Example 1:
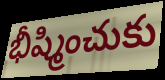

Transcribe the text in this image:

భీష్మించుకు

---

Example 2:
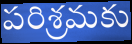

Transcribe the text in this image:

పరిశ్రమకు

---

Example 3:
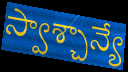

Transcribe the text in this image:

స్వాశ్చాన్యే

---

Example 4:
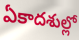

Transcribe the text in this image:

ఏకాదశుల్లో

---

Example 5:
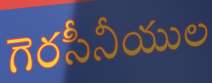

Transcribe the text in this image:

గెరసీనీయుల